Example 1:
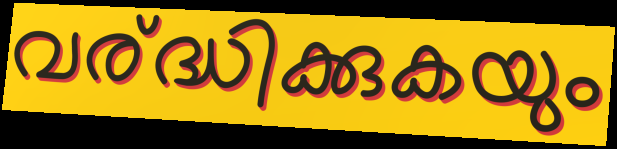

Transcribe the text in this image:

വര്ദ്ധിക്കുകയും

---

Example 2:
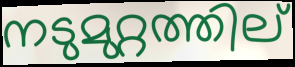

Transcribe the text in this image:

നടുമുറ്റത്തില്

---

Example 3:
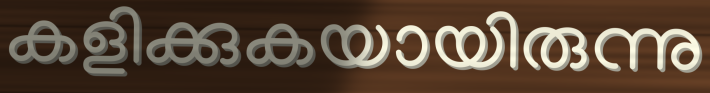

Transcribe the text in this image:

കളിക്കുകയായിരുന്നു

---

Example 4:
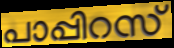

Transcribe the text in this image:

പാപ്പിറസ്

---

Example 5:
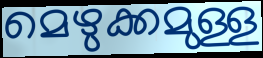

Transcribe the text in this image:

മെഴുക്കമുള്ള